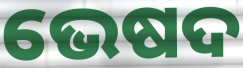
ଭେଷଦ